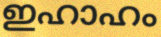
ഇഹാഹം